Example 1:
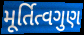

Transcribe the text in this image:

મૂર્તિત્વગુણ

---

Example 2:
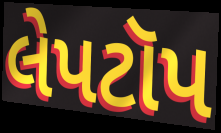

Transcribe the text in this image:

લેપટૉપ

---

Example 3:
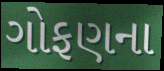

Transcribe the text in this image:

ગોફણના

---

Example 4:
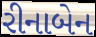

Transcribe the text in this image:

રીનાબેન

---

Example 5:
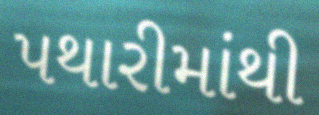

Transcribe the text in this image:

પથારીમાંથી